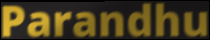
Parandhu